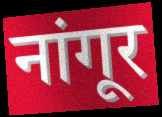
नांगूर